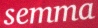
semma